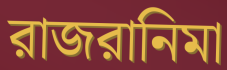
রাজরানিমা